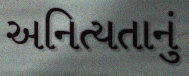
અનિત્યતાનું